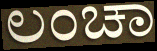
ಲಂಚಾ